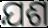
ଯଶ